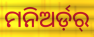
ମନିଅର୍ଡ଼ର୍